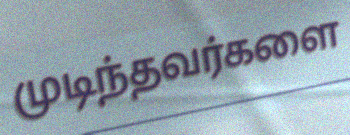
முடிந்தவர்களை